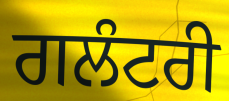
ਗਲੰਟਰੀ